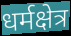
धर्मक्षेत्र